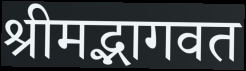
श्रीमद्भागवत